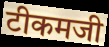
टीकमजी